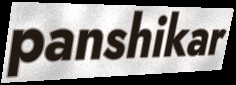
panshikar